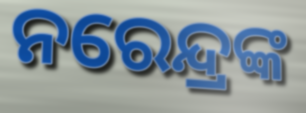
ନରେନ୍ଦ୍ରଙ୍କ